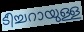
ടീച്ചറായുള്ള